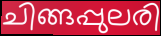
ചിങ്ങപ്പുലരി